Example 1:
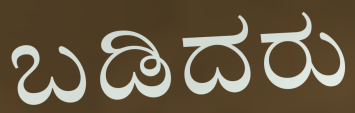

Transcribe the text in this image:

ಬಡಿದರು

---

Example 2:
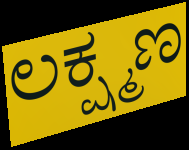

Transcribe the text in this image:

ಲಕ್ಷ್ಮಣ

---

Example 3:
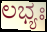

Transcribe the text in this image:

ಲಭ್ಯಃ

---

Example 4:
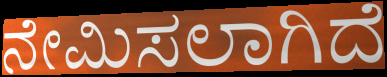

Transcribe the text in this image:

ನೇಮಿಸಲಾಗಿದೆ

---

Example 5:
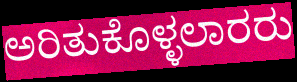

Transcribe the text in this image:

ಅರಿತುಕೊಳ್ಳಲಾರರು